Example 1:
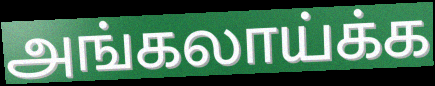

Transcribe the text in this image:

அங்கலாய்க்க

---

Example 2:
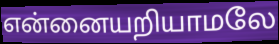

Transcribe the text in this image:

என்னையறியாமலே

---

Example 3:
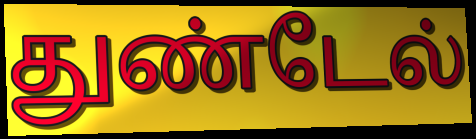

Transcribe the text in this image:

துண்டேல்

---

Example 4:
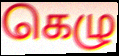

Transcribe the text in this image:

கெழு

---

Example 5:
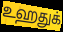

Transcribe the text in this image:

உஹதுக்